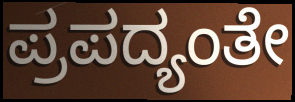
ಪ್ರಪದ್ಯಂತೇ